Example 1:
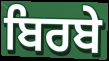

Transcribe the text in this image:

ਬਿਰਬੇ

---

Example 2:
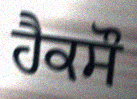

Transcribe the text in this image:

ਹੈਕਸੌ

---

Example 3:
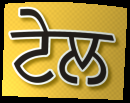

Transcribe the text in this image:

ਟੇਲ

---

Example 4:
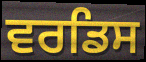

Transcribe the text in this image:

ਵਰਡਿਸ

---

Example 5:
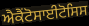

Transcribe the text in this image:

ਐਕੈਂਟੋਸਾਈਟੋਸਿਸ